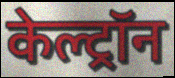
केल्ट्रॉन